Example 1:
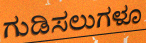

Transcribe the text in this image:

ಗುಡಿಸಲುಗಳೂ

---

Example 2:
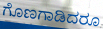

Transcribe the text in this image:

ಗೊಣಗಾಡಿದರೂ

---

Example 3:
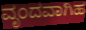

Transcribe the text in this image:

ವೃಂದವಾಗಿಹ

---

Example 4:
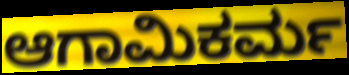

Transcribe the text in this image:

ಆಗಾಮಿಕರ್ಮ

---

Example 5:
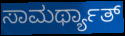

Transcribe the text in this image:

ಸಾಮರ್ಥ್ಯಾತ್